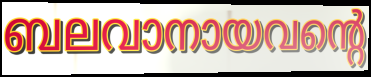
ബലവാനായവന്റെ